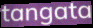
tangata